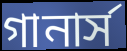
গানার্স